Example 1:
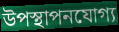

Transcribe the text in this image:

উপস্থাপনযোগ্য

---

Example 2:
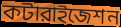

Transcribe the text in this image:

কটারাইজেশন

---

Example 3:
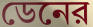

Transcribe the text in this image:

ডেনের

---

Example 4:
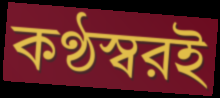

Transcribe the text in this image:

কণ্ঠস্বরই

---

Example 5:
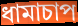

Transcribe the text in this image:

ধামাচাপ